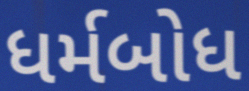
ધર્મબોધ